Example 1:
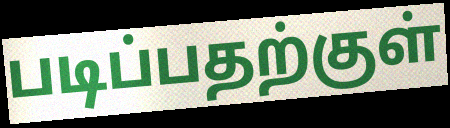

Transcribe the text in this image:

படிப்பதற்குள்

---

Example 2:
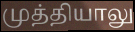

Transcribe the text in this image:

முத்தியாலு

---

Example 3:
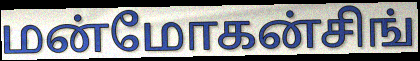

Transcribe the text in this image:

மன்மோகன்சிங்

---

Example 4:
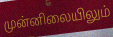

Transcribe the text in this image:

முன்னிலையிலும்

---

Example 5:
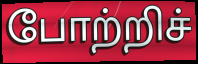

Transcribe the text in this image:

போற்றிச்